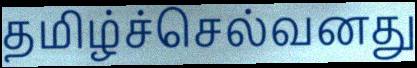
தமிழ்ச்செல்வனது